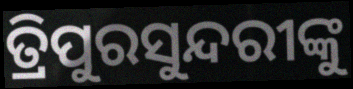
ତ୍ରିପୁରସୁନ୍ଦରୀଙ୍କୁ